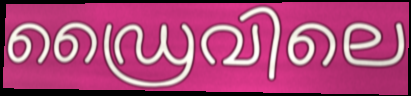
ഡ്രൈവിലെ